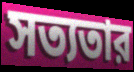
সত্যতার